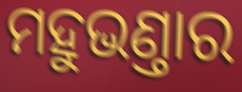
ମହୁଭଣ୍ତାର